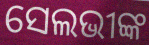
ସେଲଭୀଙ୍କ